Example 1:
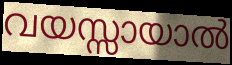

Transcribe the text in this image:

വയസ്സായാൽ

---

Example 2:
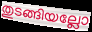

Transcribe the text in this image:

തുടങ്ങിയല്ലോ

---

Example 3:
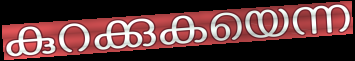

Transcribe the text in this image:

കുറക്കുകയെന്ന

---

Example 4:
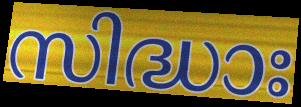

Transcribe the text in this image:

സിദ്ധാഃ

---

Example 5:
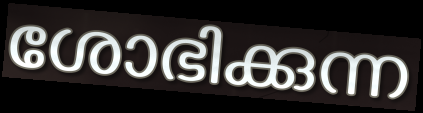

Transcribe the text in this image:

ശോഭിക്കുന്ന